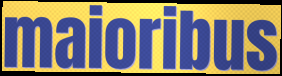
maioribus